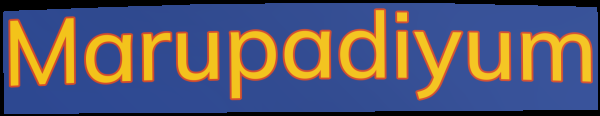
Marupadiyum